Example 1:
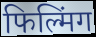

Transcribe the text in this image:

फिल्मिंग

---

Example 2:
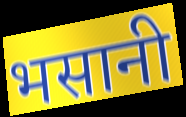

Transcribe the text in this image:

भसानी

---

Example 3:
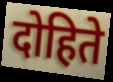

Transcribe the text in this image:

दोहिते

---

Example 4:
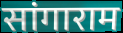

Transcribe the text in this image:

सांगाराम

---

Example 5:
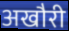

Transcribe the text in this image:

अखौरी